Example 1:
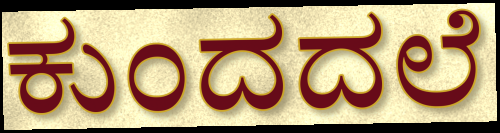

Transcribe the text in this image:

ಕುಂದದಲೆ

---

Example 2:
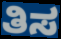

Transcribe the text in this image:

ತಿಸ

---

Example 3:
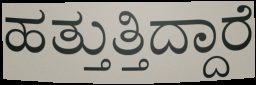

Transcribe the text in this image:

ಹತ್ತುತ್ತಿದ್ದಾರೆ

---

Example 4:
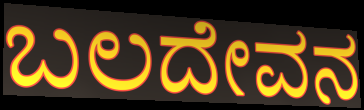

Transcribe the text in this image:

ಬಲದೇವನ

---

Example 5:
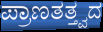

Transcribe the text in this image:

ಪ್ರಾಣತತ್ತ್ವದ